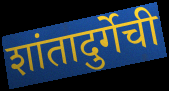
शांतादुर्गेची